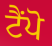
ਟੈਂਪੋ